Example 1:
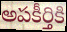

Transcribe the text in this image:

అపకీర్తికి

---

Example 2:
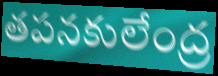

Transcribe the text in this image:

తపనకులేంద్ర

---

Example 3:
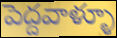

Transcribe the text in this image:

పెద్దవాళ్ళూ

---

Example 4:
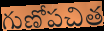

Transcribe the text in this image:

గుణోపచిత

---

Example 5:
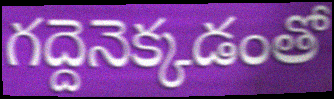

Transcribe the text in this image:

గద్దెనెక్కడంతో